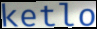
ketlo